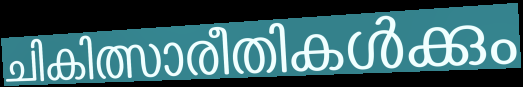
ചികിത്സാരീതികൾക്കും